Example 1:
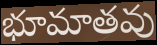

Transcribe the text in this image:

భూమాతవు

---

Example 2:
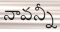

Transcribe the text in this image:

నావన్నీ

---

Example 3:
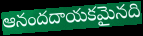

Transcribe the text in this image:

ఆనందదాయకమైనది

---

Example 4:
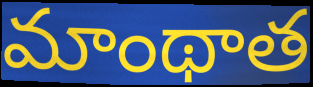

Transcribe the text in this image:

మాంథాత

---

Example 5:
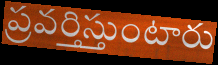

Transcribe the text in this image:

ప్రవర్తిస్తుంటారు